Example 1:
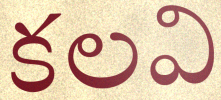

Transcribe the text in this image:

కలవి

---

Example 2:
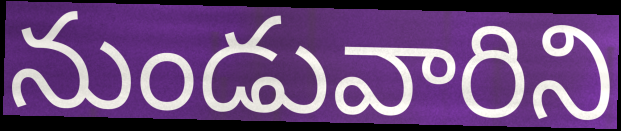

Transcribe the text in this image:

నుండువారిని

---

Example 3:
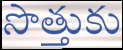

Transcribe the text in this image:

సొత్తుకు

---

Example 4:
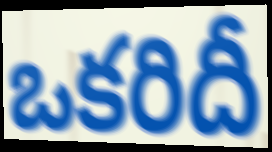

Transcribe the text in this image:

ఒకరిదీ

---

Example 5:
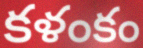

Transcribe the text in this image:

కళంకం